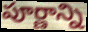
పూర్ణాన్ని